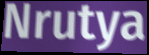
Nrutya